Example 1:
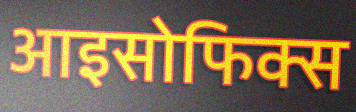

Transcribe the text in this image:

आइसोफिक्स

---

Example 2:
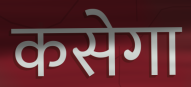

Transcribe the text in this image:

कसेगा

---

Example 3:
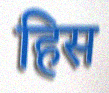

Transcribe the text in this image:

हिस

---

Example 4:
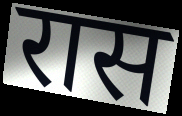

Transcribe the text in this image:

रास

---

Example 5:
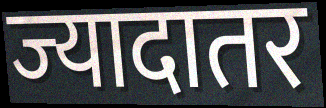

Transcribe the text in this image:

ज्‍यादातर